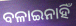
ବଳାଇନାହିଁ